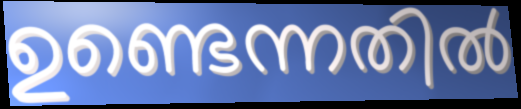
ഉണ്ടെന്നതിൽ